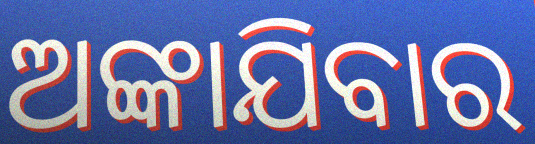
ଅଙ୍କାଯିବାର